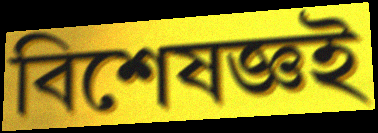
বিশেষজ্ঞই